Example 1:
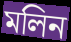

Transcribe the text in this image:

মলিন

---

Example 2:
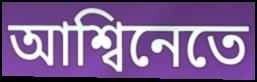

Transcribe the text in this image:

আশ্বিনেতে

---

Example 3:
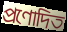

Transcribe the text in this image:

প্ৰণোদিত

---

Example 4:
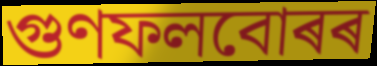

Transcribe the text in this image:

গুণফলবোৰৰ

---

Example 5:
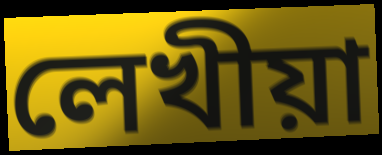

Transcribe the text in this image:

লেখীয়া